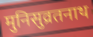
मुनिसुव्रतनाथ